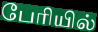
பேரியில்